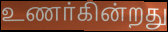
உணர்கின்றது